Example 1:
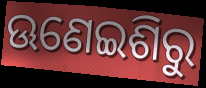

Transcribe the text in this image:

ଊଣେଇଶିରୁ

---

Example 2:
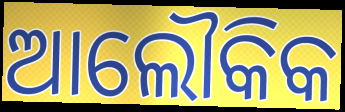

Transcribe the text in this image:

ଆଲୌକିକ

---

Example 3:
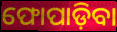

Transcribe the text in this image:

ଫୋପାଡ଼ିବା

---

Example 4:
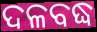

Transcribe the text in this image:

ଦଳବଦ୍ଧ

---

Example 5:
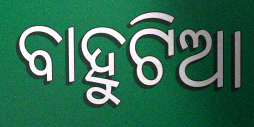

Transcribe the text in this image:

ବାହୁଟିଆ